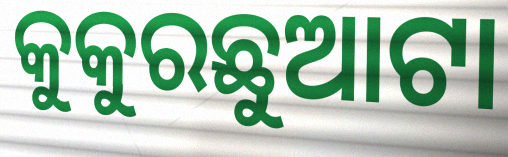
କୁକୁରଛୁଆଟା